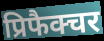
प्रिफैक्चर